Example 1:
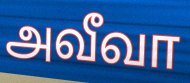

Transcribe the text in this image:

அவீவா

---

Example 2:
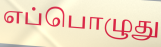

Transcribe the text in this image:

எப்பொழுது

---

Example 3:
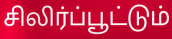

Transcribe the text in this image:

சிலிர்ப்பூட்டும்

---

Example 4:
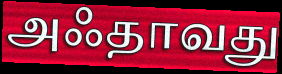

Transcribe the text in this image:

அஃதாவது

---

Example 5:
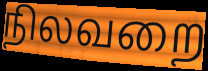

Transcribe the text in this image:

நிலவறை